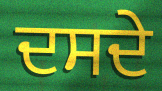
ਦਸਦੇ